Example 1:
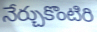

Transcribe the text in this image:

నేర్చుకొంటిరి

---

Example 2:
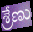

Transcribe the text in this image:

శ్రేణు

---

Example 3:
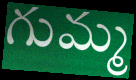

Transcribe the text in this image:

గుమ్మ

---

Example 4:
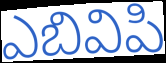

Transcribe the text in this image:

ఎబివిపి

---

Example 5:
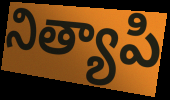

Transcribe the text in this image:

నిత్యాపి